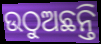
ଉଠୁଅଛନ୍ତି